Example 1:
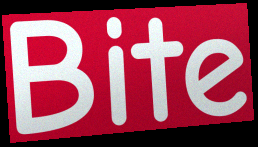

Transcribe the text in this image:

Bite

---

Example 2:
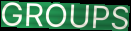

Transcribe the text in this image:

GROUPS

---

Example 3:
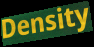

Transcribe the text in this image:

Density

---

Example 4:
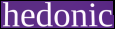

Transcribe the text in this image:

hedonic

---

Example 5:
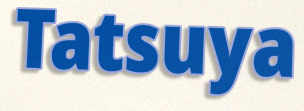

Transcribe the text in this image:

Tatsuya